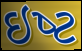
ઇષ્‍ટ